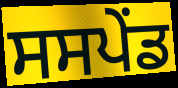
ਸਸਪੇੰਡ